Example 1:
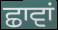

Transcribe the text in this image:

ਛਾਵਾਂ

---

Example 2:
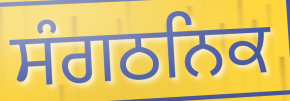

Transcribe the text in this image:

ਸੰਗਠਨਿਕ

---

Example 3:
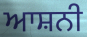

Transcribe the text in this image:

ਆਸ਼ਨੀ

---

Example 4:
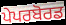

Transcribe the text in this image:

ਪੇਪਰਬੋਰਡ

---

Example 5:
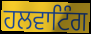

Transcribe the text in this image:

ਹਲਵਾਟਿੰਗ